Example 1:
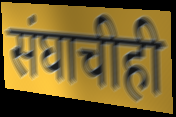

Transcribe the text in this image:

संघाचीही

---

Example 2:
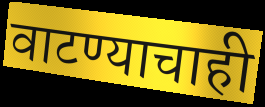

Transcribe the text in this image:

वाटण्याचाही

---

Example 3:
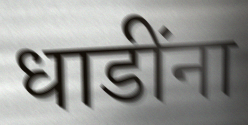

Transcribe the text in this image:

धाडींना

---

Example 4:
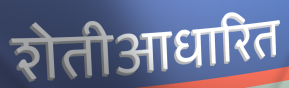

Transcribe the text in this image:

शेतीआधारित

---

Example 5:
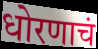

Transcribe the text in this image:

धोरणाचं